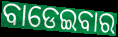
ବାଡେଇବାର